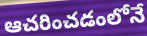
ఆచరించడంలోనే